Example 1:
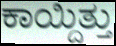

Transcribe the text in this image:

ಕಾಯ್ದಿತ್ತು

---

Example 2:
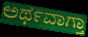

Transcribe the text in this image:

ಅರ್ಥವಾಗ್ತಾ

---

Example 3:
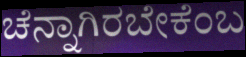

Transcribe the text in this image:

ಚೆನ್ನಾಗಿರಬೇಕೆಂಬ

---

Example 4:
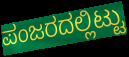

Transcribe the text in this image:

ಪಂಜರದಲ್ಲಿಟ್ಟು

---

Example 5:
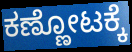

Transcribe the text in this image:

ಕಣ್ಣೋಟಕ್ಕೆ